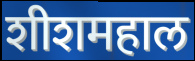
शीशमहाल